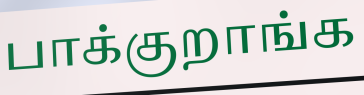
பாக்குறாங்க